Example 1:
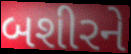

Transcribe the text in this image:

બશીરને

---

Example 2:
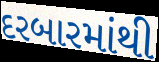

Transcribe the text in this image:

દરબારમાંથી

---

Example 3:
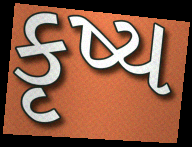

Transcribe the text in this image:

કૃષ્ય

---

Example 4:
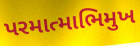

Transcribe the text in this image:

પરમાત્માભિમુખ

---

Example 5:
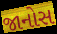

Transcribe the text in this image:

જાનોસ